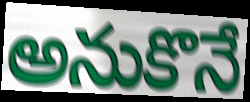
అనుకొనే